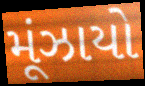
મૂંઝાયો